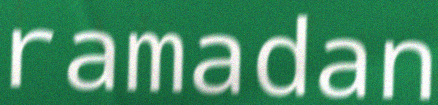
ramadan